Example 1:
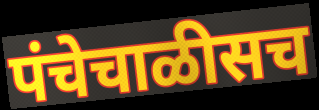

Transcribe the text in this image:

पंचेचाळीसच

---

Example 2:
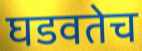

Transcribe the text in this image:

घडवतेच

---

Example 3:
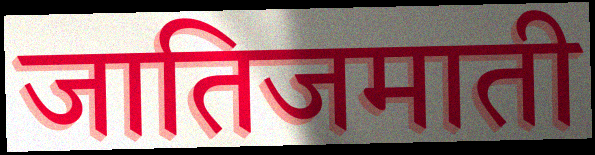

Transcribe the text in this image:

जातिजमाती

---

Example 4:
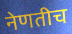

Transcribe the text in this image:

नेणतीच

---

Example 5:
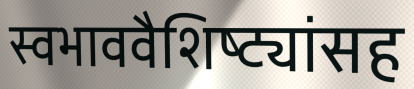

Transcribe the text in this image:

स्वभाववैशिष्ट्यांसह